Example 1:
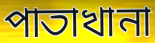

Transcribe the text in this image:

পাতাখানা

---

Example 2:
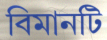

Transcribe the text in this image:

বিমানটি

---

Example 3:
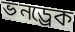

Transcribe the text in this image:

ভনড্রেক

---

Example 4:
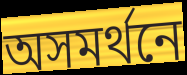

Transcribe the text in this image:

অসমর্থনে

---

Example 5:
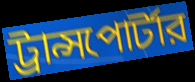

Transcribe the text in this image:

ট্রান্সপোর্টার